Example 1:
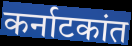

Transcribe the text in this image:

कर्नाटकांत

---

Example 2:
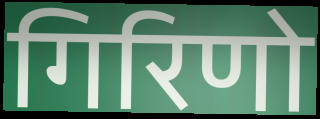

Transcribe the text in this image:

गिरिणो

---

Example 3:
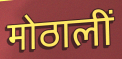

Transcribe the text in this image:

मोठालीं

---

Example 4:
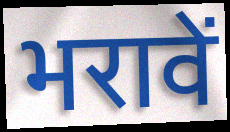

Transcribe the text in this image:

भरावें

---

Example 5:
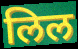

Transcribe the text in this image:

लिल